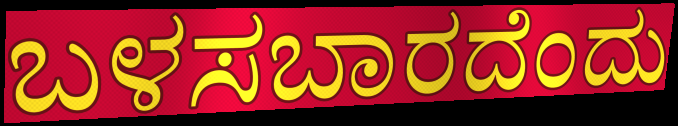
ಬಳಸಬಾರದೆಂದು